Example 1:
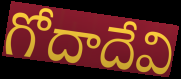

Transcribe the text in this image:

గోదాదేవి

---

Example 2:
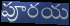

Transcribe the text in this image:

పూరయ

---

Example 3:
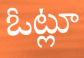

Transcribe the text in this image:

ఓట్లూ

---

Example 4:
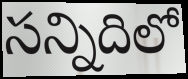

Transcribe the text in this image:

సన్నిదిలో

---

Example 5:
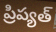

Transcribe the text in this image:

ప్రిప్యత్